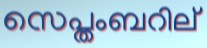
സെപ്തംബറില്